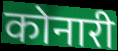
कोनारी